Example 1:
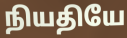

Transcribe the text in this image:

நியதியே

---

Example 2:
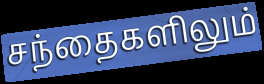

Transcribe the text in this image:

சந்தைகளிலும்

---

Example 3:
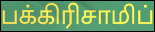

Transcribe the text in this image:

பக்கிரிசாமிப்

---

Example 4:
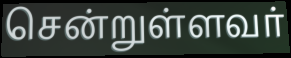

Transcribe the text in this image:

சென்றுள்ளவர்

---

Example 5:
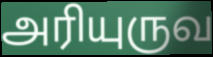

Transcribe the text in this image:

அரியுருவ